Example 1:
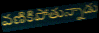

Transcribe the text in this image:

వణికిపోతున్నాడు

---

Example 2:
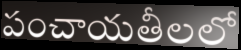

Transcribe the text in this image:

పంచాయతీలలో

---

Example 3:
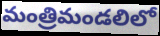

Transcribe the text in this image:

మంత్రిమండలిలో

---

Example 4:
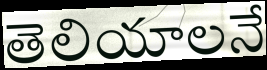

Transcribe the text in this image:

తెలియాలనే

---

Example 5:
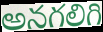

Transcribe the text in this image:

అనగలిగి